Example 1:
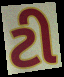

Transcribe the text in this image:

ટી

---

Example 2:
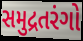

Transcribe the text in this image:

સમુદ્રતરંગો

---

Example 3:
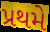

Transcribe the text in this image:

પ્રથમે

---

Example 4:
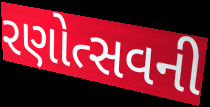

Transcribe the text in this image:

રણોત્સવની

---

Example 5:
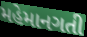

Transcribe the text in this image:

મહેમાનગતી